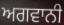
ਅਗਵਾਨੀ